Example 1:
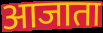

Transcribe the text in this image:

आजाता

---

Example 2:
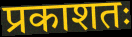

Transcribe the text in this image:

प्रकाशतः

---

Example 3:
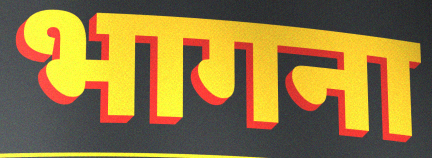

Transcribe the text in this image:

भागना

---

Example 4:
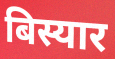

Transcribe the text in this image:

बिस्यार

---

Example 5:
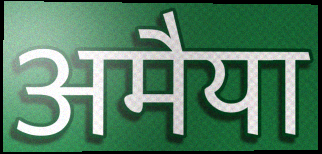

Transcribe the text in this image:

अमैया